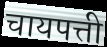
चायपत्ती